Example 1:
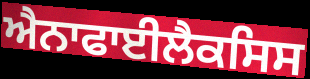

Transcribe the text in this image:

ਐਨਾਫਾਈਲੈਕਸਿਸ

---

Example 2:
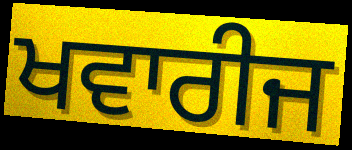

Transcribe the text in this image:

ਖਵਾਰੀਜ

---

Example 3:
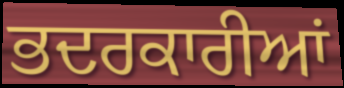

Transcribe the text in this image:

ਭਦਰਕਾਰੀਆਂ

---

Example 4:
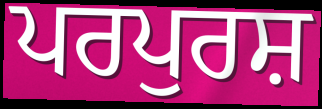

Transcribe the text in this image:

ਪਰਪੁਰਸ਼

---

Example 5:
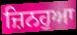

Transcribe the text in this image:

ਜ਼ਿਨਹੁਆ